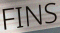
FINS